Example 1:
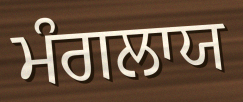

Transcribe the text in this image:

ਮੰਗਲਾਯ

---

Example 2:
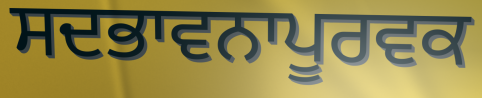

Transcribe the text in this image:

ਸਦਭਾਵਨਾਪੂਰਵਕ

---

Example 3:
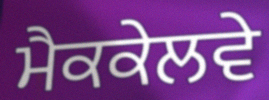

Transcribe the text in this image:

ਮੈਕਕੇਲਵੇ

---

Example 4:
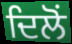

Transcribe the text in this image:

ਦਿਲੋਂ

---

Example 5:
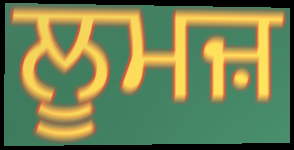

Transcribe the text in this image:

ਲੂਮਜ਼